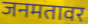
जनमतावर